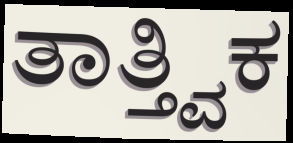
ತಾತ್ತ್ವಿಕ